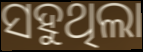
ସହୁଥିଲା